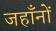
जहाँनों